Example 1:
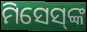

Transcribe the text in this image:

ମିସେସ୍‍ଙ୍କ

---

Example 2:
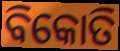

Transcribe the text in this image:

ବିକୋତି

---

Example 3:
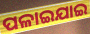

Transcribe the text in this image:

ପଳାଇଯାଇ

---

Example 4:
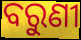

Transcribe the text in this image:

ବରୁଣୀ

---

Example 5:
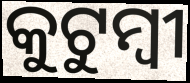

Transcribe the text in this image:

କୁଟୁମ୍ୱୀ